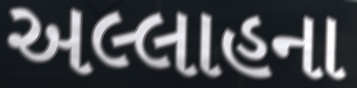
અલ્લાહના